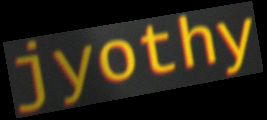
jyothy